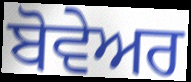
ਬੋਵੇਅਰ